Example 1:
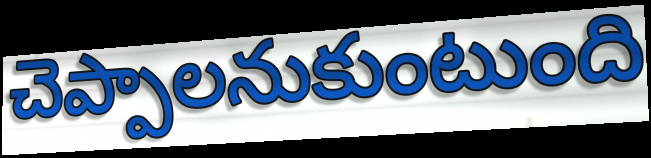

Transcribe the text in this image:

చెప్పాలనుకుంటుంది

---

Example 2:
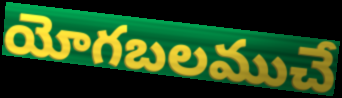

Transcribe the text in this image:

యోగబలముచే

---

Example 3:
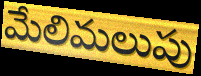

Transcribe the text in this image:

మేలిమలుపు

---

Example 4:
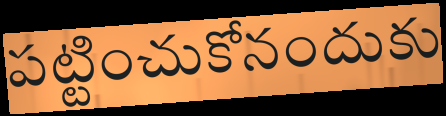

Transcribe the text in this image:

పట్టించుకోనందుకు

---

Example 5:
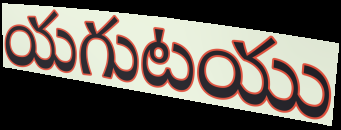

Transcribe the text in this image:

యగుటయు